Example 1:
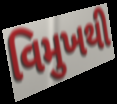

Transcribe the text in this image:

વિમુખથી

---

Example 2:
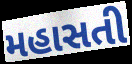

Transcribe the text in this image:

મહાસતી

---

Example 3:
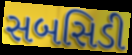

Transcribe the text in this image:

સબસિડી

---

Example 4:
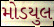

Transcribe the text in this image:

મોડયુલ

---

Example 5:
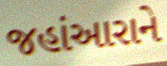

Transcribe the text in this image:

જહાંઆરાને